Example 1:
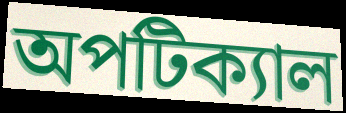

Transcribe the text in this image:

অপটিক্যাল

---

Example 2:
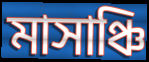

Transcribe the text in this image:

মাসাঞ্চি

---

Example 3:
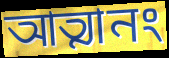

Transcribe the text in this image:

আত্মানং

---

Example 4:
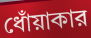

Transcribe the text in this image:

ধোঁয়াকার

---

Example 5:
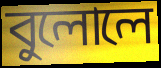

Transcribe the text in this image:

বুলোলে